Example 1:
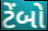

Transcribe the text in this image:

ટેંબો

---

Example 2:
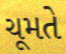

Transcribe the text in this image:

ચૂમતે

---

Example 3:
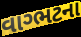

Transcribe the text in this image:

વાગ્ભટના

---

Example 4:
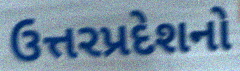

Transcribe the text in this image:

ઉત્તરપ્રદેશનો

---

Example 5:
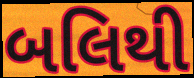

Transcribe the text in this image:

બલિથી